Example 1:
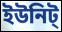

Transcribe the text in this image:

ইউনিট্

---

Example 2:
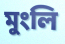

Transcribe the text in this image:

মুংলি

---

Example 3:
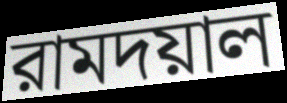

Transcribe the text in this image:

রামদয়াল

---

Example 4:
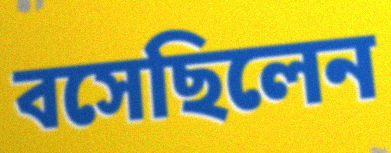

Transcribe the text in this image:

বসেছিলেন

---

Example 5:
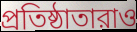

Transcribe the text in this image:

প্রতিষ্ঠাতারাও